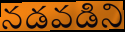
నడవడిని